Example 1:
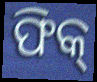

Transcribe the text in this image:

ଫିକ୍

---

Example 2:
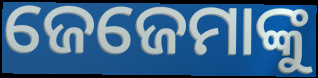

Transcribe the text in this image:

ଜେଜେମାଙ୍କୁ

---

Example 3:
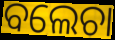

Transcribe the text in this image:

ବଲେଚା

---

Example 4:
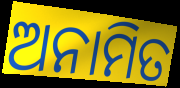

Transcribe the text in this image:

ଅନାମିତ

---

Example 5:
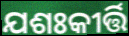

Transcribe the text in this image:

ଯଶଃକୀର୍ତ୍ତି